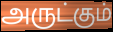
அருட்கும்